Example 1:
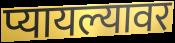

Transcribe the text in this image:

प्यायल्यावर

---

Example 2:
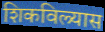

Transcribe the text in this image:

शिकविल्यास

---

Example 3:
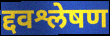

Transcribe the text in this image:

द्दवश्लेषण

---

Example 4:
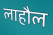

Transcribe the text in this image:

लाहौल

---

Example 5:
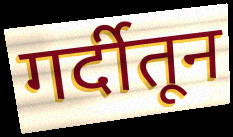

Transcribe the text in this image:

गर्दीतून